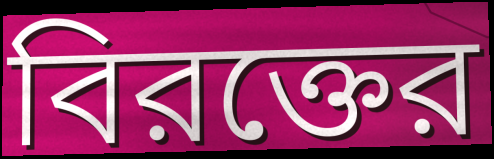
বিরক্তের